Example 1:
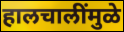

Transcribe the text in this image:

हालचालींमुळे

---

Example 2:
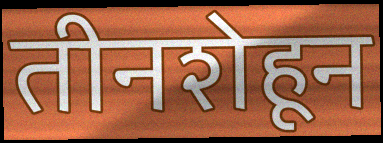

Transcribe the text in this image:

तीनशेहून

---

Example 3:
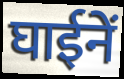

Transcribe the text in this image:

घाईनें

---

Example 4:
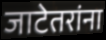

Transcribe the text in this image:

जाटेतरांना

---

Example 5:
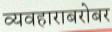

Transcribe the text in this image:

व्यवहाराबरोबर